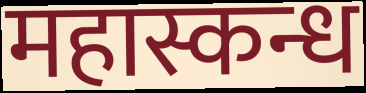
महास्कन्ध